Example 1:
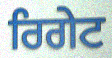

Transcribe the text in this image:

ਰਿਗੇਟ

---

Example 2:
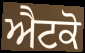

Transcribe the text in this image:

ਐਟਕੋ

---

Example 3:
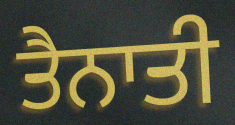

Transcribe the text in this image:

ਤੈਨਾਤੀ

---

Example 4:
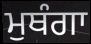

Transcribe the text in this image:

ਮੁਥੰਗਾ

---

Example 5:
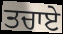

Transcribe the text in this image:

ਤਚਾਏ